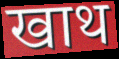
खाथ